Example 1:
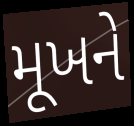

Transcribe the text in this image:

મૂખને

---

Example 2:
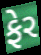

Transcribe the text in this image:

ફેર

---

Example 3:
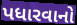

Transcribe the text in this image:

પધારવાનો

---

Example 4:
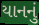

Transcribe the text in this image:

યાનનું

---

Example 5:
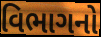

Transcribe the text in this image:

વિભાગનો